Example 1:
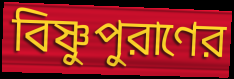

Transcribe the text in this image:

বিষ্ণুপুরাণের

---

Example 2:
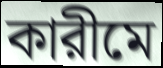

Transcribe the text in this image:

কারীমে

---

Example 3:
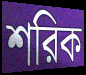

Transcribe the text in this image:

শরিক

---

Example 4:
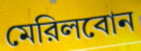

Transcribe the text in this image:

মেরিলবোন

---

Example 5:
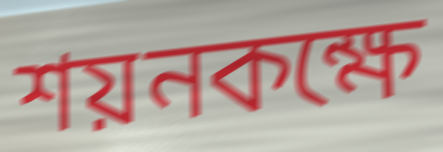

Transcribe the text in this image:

শয়নকক্ষে